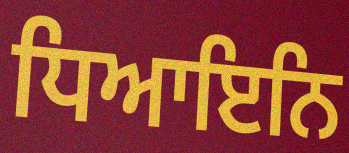
ਧਿਆਇਨਿ